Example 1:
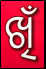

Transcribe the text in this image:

ଖିଁ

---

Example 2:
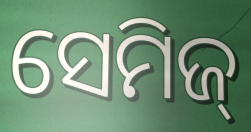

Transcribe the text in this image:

ସେମିଜ୍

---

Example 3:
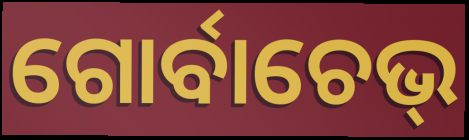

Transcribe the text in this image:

ଗୋର୍ବାଚେଭ୍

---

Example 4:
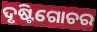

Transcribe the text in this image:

ଦୃଷ୍ଟିଗୋଚର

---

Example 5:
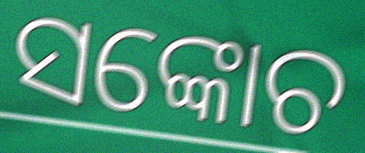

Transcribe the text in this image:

ସଙ୍କୋଚ